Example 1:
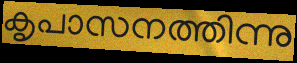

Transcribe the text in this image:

കൃപാസനത്തിന്നു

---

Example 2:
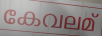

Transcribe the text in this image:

കേവലമ്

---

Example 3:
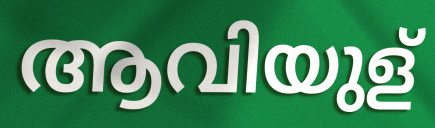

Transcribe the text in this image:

ആവിയുള്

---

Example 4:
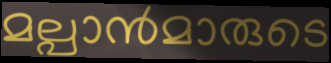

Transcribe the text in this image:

മല്പാൻമാരുടെ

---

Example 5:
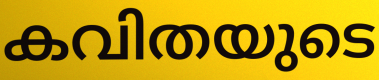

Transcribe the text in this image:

കവിതയുടെ